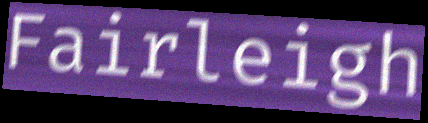
Fairleigh